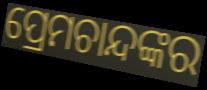
ପ୍ରେମଚାନ୍ଦଙ୍କର